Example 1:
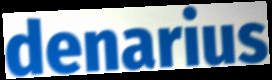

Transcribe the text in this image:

denarius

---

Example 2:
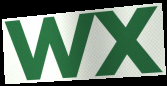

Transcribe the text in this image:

wx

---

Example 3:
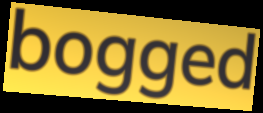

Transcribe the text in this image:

bogged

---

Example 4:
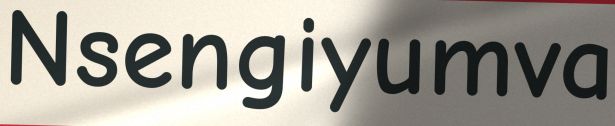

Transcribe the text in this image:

Nsengiyumva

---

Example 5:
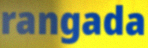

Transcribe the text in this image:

rangada